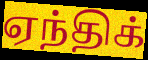
ஏந்திக்